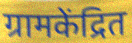
ग्रामकेंद्रित